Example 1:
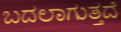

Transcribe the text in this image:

ಬದಲಾಗುತ್ತದೆ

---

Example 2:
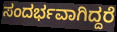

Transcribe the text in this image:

ಸಂದರ್ಭವಾಗಿದ್ದರೆ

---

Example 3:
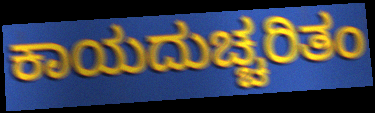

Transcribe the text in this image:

ಕಾಯದುಚ್ಚರಿತಂ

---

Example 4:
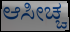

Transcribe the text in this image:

ಆಸೀಚ್ಚ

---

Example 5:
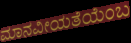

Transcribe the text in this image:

ಮಾನವೀಯತೆಯೆಂಬ